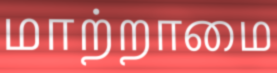
மாற்றாமை